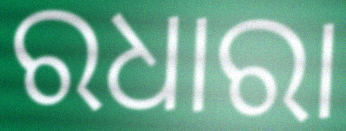
ରଧାରା